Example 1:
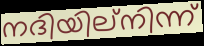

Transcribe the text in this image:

നദിയില്നിന്ന്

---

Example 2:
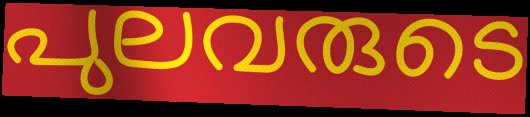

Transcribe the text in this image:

പുലവരുടെ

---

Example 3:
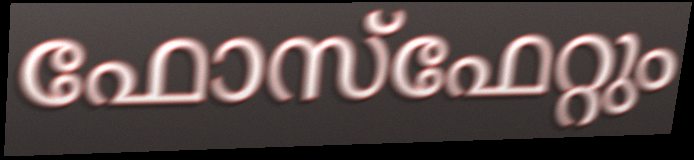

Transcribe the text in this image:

ഫോസ്ഫേറ്റും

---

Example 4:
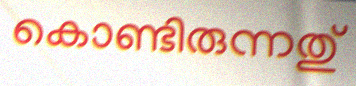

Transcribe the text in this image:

കൊണ്ടിരുന്നതു്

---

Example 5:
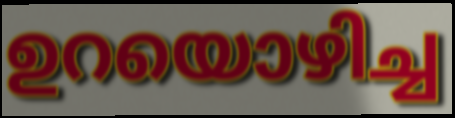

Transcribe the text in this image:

ഉറയൊഴിച്ച